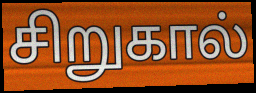
சிறுகால்